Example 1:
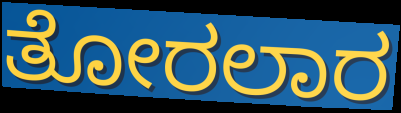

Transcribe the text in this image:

ತೋರಲಾರ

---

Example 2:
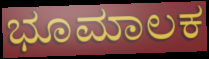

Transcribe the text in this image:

ಭೂಮಾಲಕ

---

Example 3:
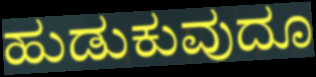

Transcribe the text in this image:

ಹುಡುಕುವುದೂ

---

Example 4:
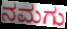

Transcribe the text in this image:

ನಮಗು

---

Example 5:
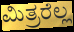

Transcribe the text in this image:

ಮಿತ್ರರೆಲ್ಲ